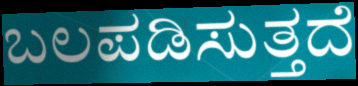
ಬಲಪಡಿಸುತ್ತದೆ